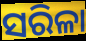
ସରିଳା